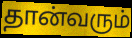
தான்வரும்